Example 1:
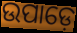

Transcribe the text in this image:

ଉପାଡ଼େ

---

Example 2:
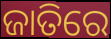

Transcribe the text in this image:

ଜାତିରେ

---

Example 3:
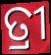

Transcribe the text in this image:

ତ୍ରୀ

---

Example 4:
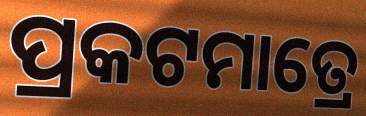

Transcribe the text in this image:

ପ୍ରକଟମାତ୍ରେ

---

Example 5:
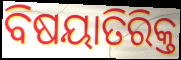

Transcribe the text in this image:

ବିଷୟାତିରିକ୍ତ